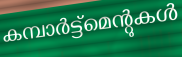
കമ്പാർട്ട്മെന്റുകൾ